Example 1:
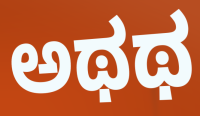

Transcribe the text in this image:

ಅಥಥ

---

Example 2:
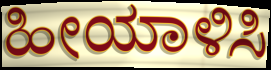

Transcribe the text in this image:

ಹೀಯಾಳಿಸಿ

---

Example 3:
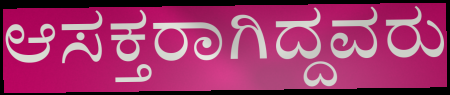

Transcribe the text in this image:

ಆಸಕ್ತರಾಗಿದ್ದವರು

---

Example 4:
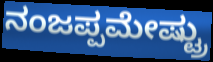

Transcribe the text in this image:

ನಂಜಪ್ಪಮೇಷ್ಟ್ರು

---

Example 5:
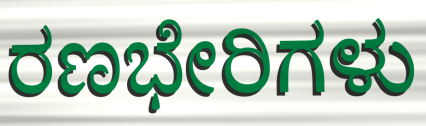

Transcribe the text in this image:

ರಣಭೇರಿಗಳು